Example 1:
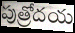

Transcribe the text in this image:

పుత్రోదయ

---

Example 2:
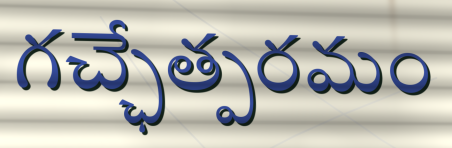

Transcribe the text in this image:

గచ్ఛేత్పరమం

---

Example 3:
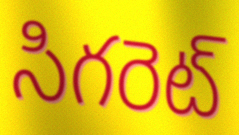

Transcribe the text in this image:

సిగరెట్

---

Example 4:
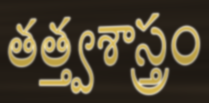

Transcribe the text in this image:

తత్త్వశాస్త్రం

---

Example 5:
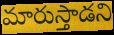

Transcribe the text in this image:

మారుస్తాడని